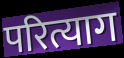
परित्याग